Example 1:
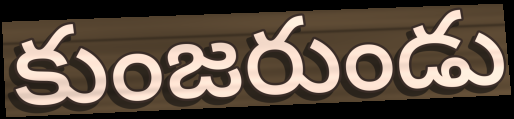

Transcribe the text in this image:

కుంజరుండు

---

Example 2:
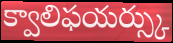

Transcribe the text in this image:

క్వాలిఫయర్స్కు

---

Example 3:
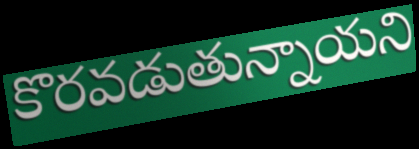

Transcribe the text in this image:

కొరవడుతున్నాయని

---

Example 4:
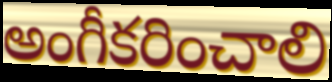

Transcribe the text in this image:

అంగీకరించాలి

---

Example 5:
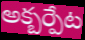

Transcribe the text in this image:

అక్బర్పేట